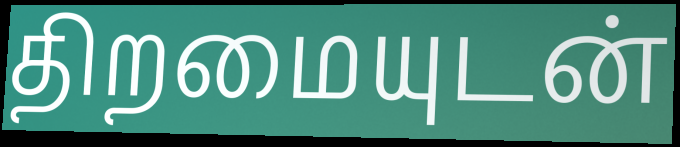
திறமையுடன்